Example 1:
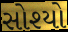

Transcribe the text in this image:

સોશ્યો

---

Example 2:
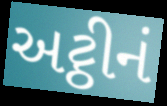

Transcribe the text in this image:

અટ્ઠીનં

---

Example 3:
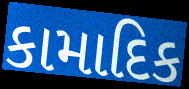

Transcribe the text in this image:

કામાદિક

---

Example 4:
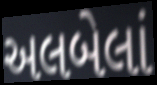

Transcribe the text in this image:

અલબેલાં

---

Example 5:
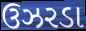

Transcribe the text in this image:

ઉઝરડા